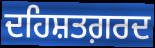
ਦਹਿਸ਼ਤਗ਼ਰਦ